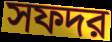
সফদর